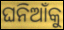
ଘନିଆଁକୁ